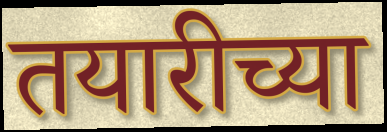
तयारीच्या